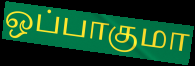
ஒப்பாகுமா